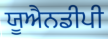
ਯੂਐਨਡੀਪੀ